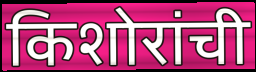
किशोरांची